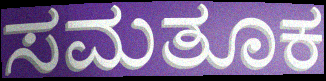
ಸಮತೂಕ